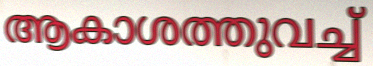
ആകാശത്തുവച്ച്